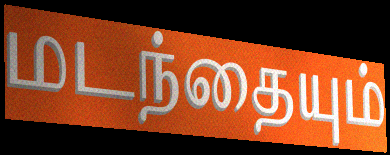
மடந்தையும்